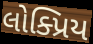
લોક્પ્રિય